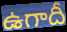
ఉగాదీ